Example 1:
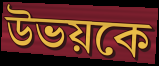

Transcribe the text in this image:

উভয়কে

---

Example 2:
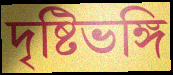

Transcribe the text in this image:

দৃষ্টিভঙ্গি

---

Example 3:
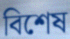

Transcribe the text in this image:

বিশেষ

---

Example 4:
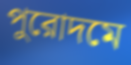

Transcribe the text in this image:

পুরোদমে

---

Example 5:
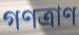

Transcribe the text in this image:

গণত্রাণ